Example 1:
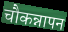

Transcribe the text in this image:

चौकन्नापन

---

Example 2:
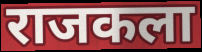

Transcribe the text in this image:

राजकला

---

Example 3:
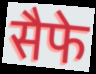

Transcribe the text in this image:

सैफे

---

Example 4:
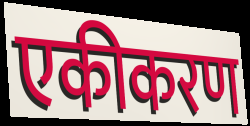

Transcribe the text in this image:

एकीकरण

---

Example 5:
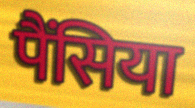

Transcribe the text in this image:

पैंसिया